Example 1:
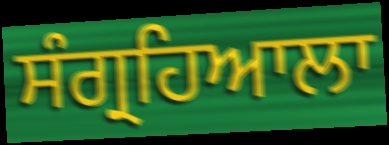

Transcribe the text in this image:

ਸੰਗ੍ਰਹਿਆਲਾ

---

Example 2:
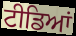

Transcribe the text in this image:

ਟੀਡਿਆਂ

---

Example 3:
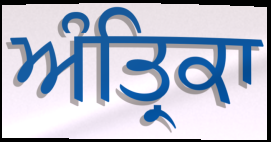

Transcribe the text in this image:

ਅੰਤ੍ਰਿਕਾ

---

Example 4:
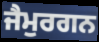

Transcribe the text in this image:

ਜੈਮੁਰਗਨ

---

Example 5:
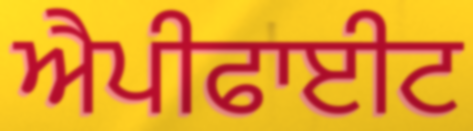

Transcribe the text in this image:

ਐਪੀਫਾਈਟ